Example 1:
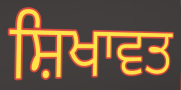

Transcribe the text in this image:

ਸ਼ਿਖਾਵਤ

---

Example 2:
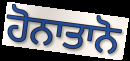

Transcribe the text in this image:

ਹੋਨਾਤਾਨੋ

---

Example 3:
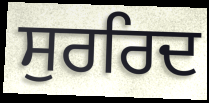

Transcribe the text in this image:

ਸੁਰਰਿਦ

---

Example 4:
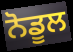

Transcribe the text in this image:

ਨੋਡੂਲ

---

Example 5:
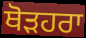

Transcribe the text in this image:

ਥੋੜਹਰਾ